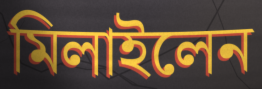
মিলাইলেন